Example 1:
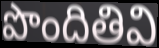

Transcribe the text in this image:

పొందితివి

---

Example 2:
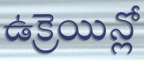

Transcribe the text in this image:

ఉక్రెయిన్లో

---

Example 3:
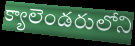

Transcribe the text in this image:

క్యాలెండరులోని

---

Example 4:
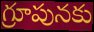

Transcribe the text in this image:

గ్రూపునకు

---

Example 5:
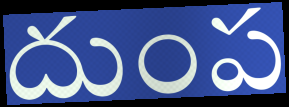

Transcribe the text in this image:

దుంప